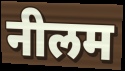
नीलम